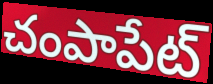
చంపాపేట్